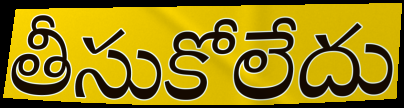
తీసుకోలేదు